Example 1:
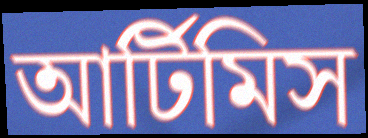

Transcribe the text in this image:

আর্টিমিস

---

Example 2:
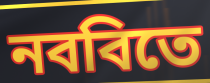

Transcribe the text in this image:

নববিতে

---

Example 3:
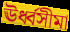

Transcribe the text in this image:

ঊর্ধ্বসীমা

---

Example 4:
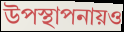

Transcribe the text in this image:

উপস্থাপনায়ও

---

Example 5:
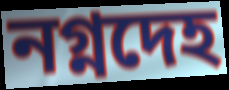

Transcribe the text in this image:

নগ্নদেহ